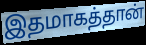
இதமாகத்தான்